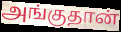
அங்குதான்